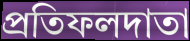
প্রতিফলদাতা